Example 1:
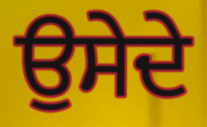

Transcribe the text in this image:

ਉਸੇਦੇ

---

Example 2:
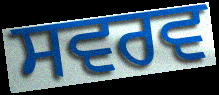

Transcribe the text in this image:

ਸਵਰਵ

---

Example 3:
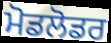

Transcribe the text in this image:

ਮੋਡਲੋਡਰ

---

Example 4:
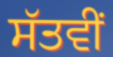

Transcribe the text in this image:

ਸੱਤਵੀਂ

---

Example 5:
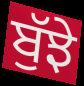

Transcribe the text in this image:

ਬੁੱਝੇ